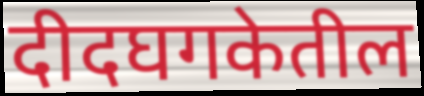
दीदघगकेतील